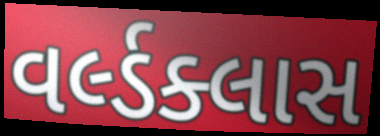
વર્લ્ડક્લાસ